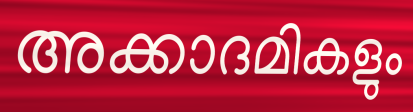
അക്കാദമികളും